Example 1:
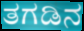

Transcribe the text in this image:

ತಗಡಿನ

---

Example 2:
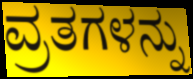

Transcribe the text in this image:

ವ್ರತಗಳನ್ನು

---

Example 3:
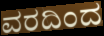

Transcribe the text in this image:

ವರದಿಂದ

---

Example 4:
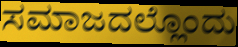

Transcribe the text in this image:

ಸಮಾಜದಲ್ಲೊಂದು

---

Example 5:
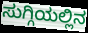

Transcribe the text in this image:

ಸುಗ್ಗಿಯಲ್ಲಿನ